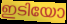
ഇടിയോ